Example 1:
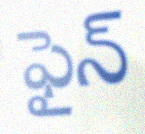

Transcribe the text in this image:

ఫైన్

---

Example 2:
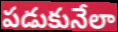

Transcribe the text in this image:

పడుకునేలా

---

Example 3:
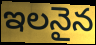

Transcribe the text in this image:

ఇలనైన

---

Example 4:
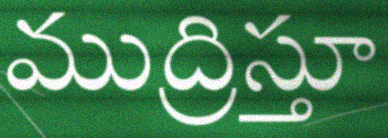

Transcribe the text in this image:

ముద్రిస్తూ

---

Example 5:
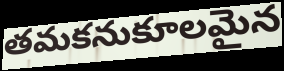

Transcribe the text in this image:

తమకనుకూలమైన